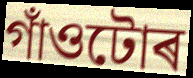
গাঁওটোৰ